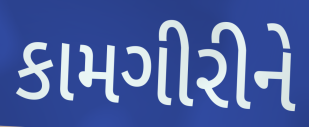
કામગીરીને